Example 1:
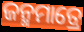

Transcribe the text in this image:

ଜନ୍ମମାତ୍ରେ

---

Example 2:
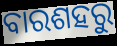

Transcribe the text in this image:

ବାରଶହରୁ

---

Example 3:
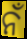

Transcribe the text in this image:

ନଁ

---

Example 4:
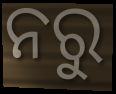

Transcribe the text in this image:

ନରୁ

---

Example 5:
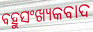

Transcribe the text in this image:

ବହୁସଂଖ୍ୟକବାଦ